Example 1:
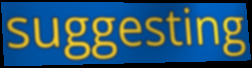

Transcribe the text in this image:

suggesting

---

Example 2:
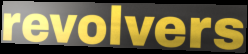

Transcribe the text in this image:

revolvers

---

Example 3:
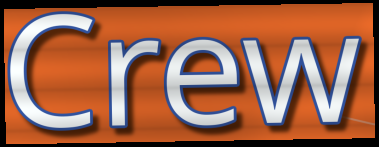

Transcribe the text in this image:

Crew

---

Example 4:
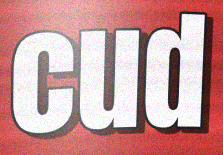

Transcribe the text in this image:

cud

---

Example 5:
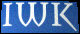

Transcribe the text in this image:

IWK